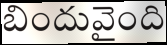
బిందువైంది